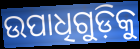
ଉପାଧିଗୁଡ଼ିକୁ